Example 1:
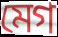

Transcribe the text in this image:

মেগ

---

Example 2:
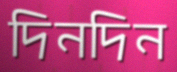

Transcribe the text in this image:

দিনদিন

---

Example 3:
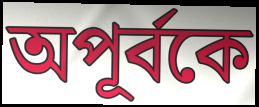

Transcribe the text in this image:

অপূর্বকে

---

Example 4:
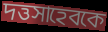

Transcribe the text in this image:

দত্তসাহেবকে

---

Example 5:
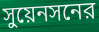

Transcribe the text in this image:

সুয়েনসনের